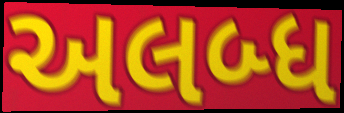
અલબ્ધ